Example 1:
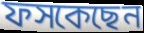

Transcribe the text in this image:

ফসকেছেন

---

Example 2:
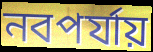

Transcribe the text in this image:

নবপর্যায়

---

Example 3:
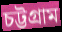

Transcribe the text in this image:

চট্টগ্রাম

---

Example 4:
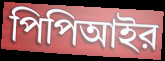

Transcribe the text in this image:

পিপিআইর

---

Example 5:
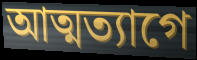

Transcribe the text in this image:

আত্মত্যাগে